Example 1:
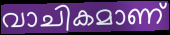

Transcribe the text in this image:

വാചികമാണ്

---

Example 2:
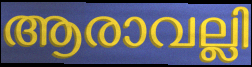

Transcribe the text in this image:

ആരാവല്ലി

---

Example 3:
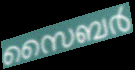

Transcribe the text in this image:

സൈബർ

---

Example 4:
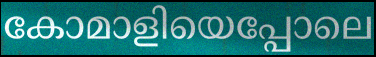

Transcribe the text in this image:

കോമാളിയെപ്പോലെ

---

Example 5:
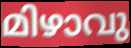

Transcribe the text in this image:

മിഴാവു